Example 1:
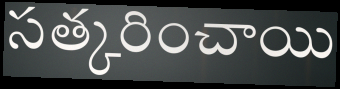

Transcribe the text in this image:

సత్కరించాయి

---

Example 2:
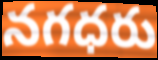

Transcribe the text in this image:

నగధరు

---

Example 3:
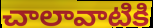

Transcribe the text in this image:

చాలావాటికి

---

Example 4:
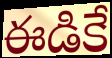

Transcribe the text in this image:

ఈడికే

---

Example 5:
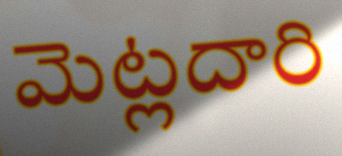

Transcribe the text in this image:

మెట్లదారి